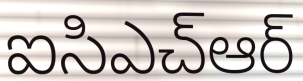
ఐసిఎచ్ఆర్